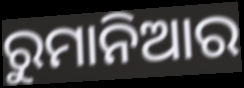
ରୁମାନିଆର